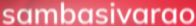
sambasivarao